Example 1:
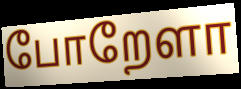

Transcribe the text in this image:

போறேளா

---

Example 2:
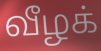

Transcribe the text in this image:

வீழக்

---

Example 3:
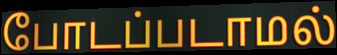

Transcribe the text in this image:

போடப்படாமல்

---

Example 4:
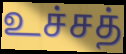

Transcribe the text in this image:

உச்சத்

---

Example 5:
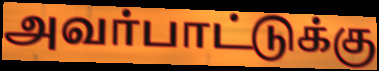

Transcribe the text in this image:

அவர்பாட்டுக்கு